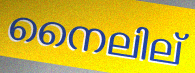
നൈലില്